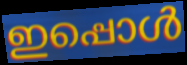
ഇപ്പൊൾ